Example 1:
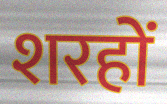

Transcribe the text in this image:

शरहों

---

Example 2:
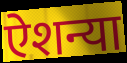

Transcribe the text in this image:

ऐशन्या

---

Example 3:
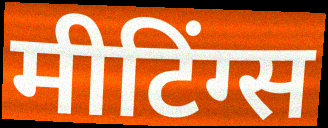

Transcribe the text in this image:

मीटिंग्स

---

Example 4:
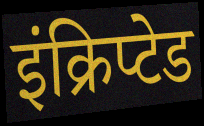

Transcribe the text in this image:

इंक्रिप्टेड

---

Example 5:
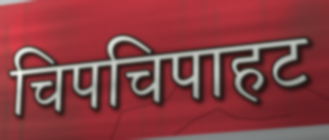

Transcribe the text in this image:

चिपचिपाहट